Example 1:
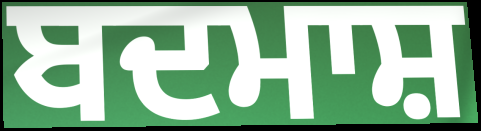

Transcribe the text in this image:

ਬਦਮਾਸ਼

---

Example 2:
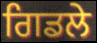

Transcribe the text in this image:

ਗਿਡਲੇ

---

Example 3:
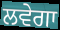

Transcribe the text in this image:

ਲਵੇਗਾ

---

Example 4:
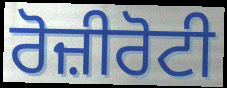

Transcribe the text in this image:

ਰੋਜ਼ੀਰੋਟੀ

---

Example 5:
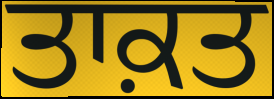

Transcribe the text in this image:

ਤਾਕ਼ਤ